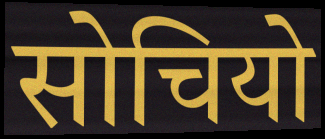
सोचियो